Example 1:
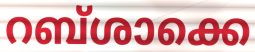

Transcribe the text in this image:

റബ്ശാക്കെ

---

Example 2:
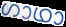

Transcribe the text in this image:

ഗാഥാ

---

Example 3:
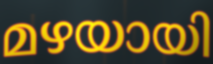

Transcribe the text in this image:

മഴയായി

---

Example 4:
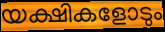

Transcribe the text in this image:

യക്ഷികളോടും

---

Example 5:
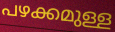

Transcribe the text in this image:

പഴക്കമുള്ള